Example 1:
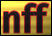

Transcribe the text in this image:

nff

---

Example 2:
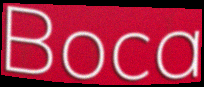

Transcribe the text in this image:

Boca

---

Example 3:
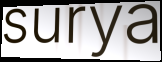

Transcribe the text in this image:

surya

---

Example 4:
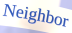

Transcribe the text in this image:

Neighbor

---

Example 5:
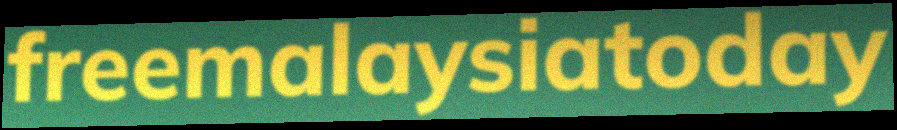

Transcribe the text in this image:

freemalaysiatoday